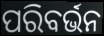
ପରିବର୍ଭନ